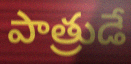
పాత్రుడే